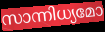
സാന്നിധ്യമോ